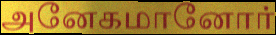
அனேகமானோர்